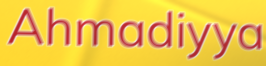
Ahmadiyya